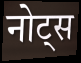
नोट्स